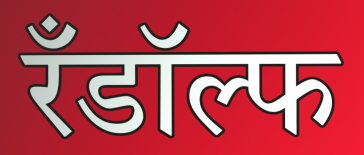
रँडॉल्फ